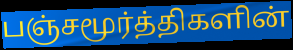
பஞ்சமூர்த்திகளின்